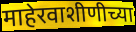
माहेरवाशीणीच्या